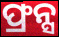
ଫ୍ରନ୍ସ